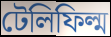
টেলিফিল্ম